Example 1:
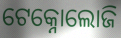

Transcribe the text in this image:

ଟେକ୍ନୋଲୋଜି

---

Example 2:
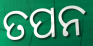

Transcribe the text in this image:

ତପନ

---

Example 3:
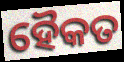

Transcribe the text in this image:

ହୈକତ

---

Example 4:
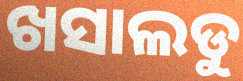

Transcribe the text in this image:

ଖସାଲଡୁ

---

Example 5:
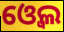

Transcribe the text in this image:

ଓ୍ବେଲ